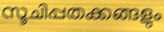
സൂചിപ്പതക്കങ്ങളും